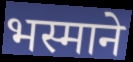
भस्माने